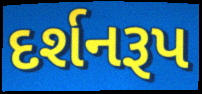
દર્શનરૂપ